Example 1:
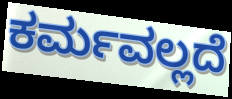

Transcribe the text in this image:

ಕರ್ಮವಲ್ಲದೆ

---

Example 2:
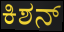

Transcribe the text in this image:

ಕಿಶನ್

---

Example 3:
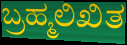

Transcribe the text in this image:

ಬ್ರಹ್ಮಲಿಖಿತ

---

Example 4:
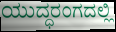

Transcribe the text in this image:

ಯುದ್ಧರಂಗದಲ್ಲಿ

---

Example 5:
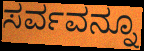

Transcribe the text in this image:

ಸರ್ವವನ್ನೂ